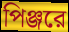
পিঞ্জরে